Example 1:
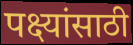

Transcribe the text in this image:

पक्ष्यांसाठी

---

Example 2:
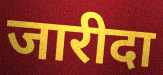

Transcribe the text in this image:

जारीदा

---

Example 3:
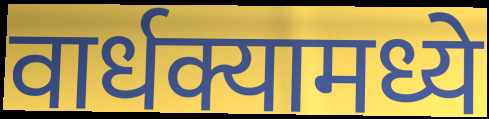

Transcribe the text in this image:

वार्धक्यामध्ये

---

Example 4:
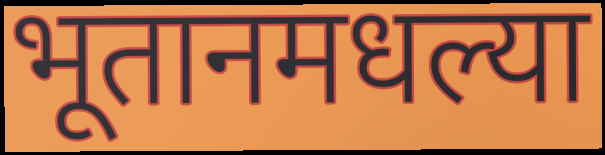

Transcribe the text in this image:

भूतानमधल्या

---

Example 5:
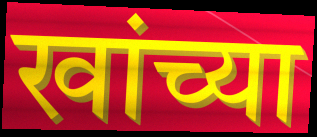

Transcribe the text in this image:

खांच्या